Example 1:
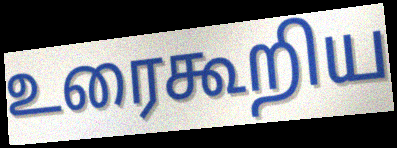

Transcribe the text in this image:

உரைகூறிய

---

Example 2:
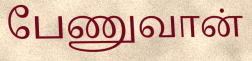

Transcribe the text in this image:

பேணுவான்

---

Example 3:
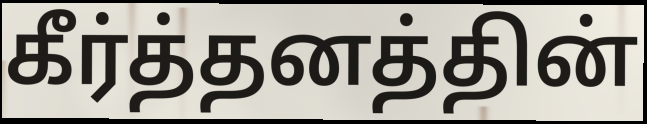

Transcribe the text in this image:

கீர்த்தனத்தின்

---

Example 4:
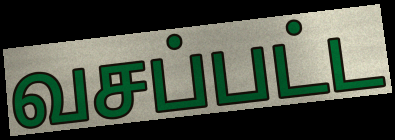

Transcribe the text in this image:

வசப்பட்ட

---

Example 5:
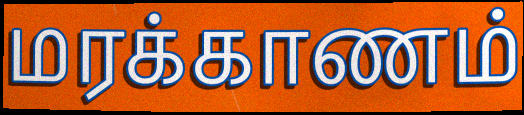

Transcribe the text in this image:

மரக்காணம்